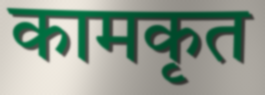
कामकृत